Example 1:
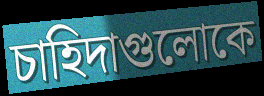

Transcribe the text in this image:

চাহিদাগুলোকে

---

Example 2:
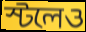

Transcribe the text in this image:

স্টলেও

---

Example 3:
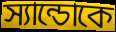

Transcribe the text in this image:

স্যান্ডোকে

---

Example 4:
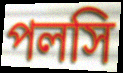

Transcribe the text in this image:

পলসি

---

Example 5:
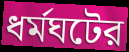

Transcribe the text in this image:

ধর্মঘটের